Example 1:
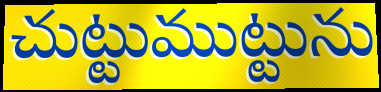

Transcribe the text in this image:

చుట్టుముట్టును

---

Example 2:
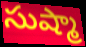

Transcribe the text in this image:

సుష్మా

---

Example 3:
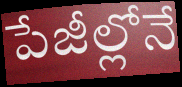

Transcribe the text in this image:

పేజీల్లోనే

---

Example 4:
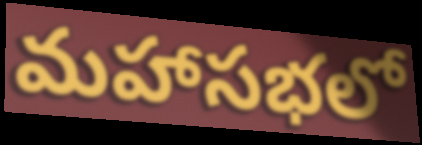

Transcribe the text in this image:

మహాసభలో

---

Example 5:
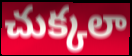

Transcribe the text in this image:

చుక్కలా